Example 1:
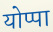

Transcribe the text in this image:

योप्पा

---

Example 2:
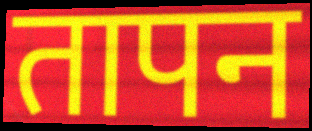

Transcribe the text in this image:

तापन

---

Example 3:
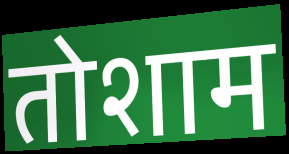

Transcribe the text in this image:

तोशाम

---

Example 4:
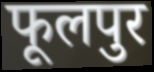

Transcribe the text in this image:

फूलपुर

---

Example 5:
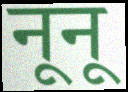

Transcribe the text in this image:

नूनू